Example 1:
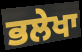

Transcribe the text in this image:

ਭਲੇਖਾ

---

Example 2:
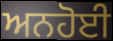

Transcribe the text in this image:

ਅਨਹੋਈ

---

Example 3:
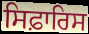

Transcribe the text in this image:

ਸਿਫ਼ਾਰਿਸ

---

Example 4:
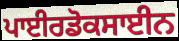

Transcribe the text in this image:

ਪਾਈਰਡੋਕਸਾਈਨ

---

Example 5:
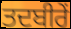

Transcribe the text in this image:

ਤਦਬੀਰੇਂ